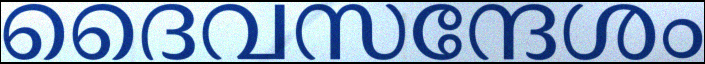
ദൈവസന്ദേശം